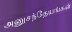
அனுசந்தேயங்கள்